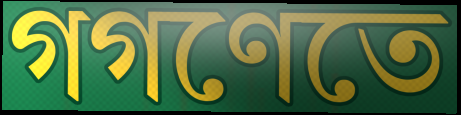
গগণেতে